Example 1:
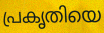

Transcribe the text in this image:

പ്രകൃതിയെ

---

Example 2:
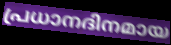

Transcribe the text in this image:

പ്രധാനദിനമായ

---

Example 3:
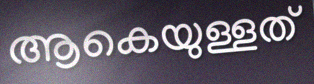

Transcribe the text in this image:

ആകെയുള്ളത്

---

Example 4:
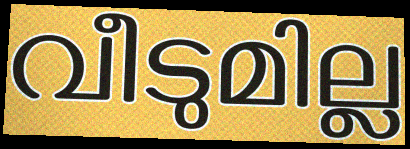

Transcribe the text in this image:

വീടുമില്ല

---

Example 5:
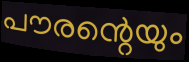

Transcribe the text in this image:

പൗരന്റെയും